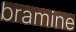
bramine